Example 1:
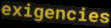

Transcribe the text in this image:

exigencies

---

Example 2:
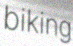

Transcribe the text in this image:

biking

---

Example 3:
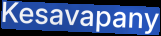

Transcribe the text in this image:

Kesavapany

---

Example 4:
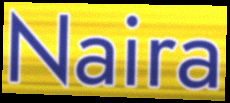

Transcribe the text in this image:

Naira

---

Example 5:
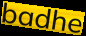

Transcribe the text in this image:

badhe